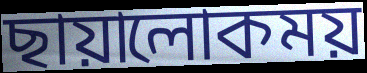
ছায়ালোকময়